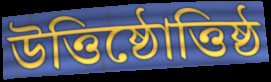
উত্তিষ্ঠোত্তিষ্ঠ